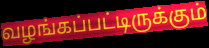
வழங்கப்பட்டிருக்கும்